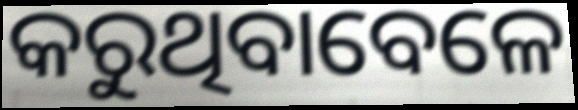
କରୁଥିବାବେଳେ